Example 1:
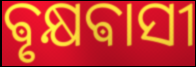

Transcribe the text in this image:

ଵୃକ୍ଷଵାସୀ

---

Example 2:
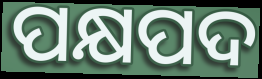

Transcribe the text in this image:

ପକ୍ଷପଦ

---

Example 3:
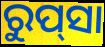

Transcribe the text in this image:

ରୁପ୍‍ସା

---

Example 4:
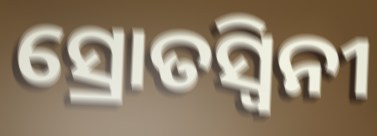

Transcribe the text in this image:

ସ୍ରୋତସ୍ୱିନୀ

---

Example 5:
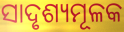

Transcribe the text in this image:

ସାଦୃଶ୍ୟମୂଳକ